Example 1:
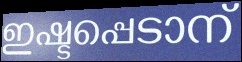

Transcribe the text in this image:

ഇഷ്ടപ്പെടാന്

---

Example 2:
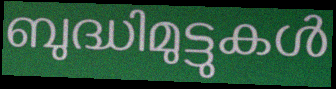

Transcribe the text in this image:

ബുദ്ധിമുട്ടുകൾ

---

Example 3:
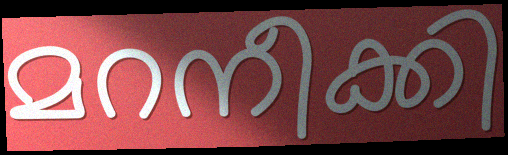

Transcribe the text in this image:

മറനീക്കി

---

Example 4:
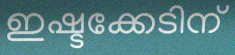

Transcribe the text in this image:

ഇഷ്ടക്കേടിന്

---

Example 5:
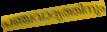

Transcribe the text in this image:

പഞ്ചവാദ്യത്തിനും